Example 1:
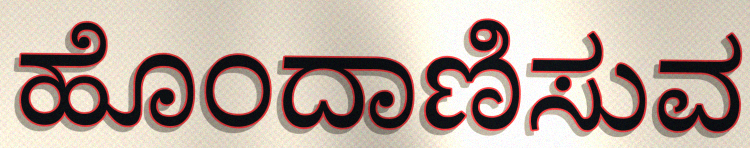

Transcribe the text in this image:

ಹೊಂದಾಣಿಸುವ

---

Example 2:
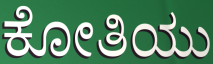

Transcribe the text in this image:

ಕೋತಿಯು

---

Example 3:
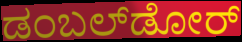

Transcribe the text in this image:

ಡಂಬಲ್‌ಡೋರ್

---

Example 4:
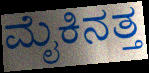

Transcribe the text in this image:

ಮೈಕಿನತ್ತ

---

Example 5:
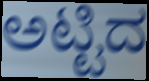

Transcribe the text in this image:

ಅಟ್ಟಿದ